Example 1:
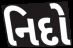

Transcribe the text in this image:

નિદો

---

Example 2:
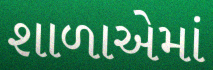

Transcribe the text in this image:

શાળાએમાં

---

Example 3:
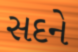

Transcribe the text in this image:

સદને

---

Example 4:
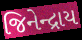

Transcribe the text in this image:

જિનેન્દ્રાય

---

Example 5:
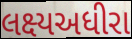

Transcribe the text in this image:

લક્ષ્યઅધીરા